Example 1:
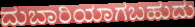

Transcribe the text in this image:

ದುಬಾರಿಯಾಗಬಹುದು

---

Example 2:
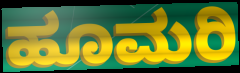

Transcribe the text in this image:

ಹೂಮರಿ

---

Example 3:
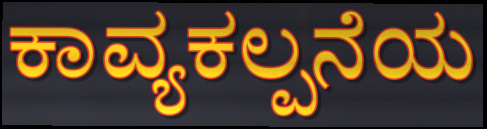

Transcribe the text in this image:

ಕಾವ್ಯಕಲ್ಪನೆಯ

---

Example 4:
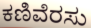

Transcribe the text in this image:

ಕಣಿವೆರಸು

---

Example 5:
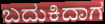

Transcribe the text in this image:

ಬದುಕಿದಾಗ